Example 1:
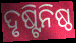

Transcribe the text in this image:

ଦୃଷ୍ଟିନିଷ୍ଠ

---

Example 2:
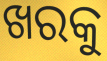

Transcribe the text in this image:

ଖରକୁ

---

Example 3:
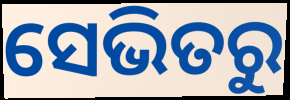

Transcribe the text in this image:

ସେଭିତରୁ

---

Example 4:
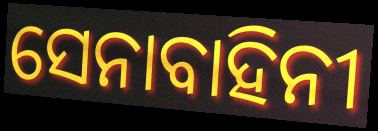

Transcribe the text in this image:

ସେନାବାହିନୀ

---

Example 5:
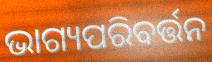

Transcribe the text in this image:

ଭାଗ୍ୟପରିବର୍ତ୍ତନ